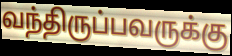
வந்திருப்பவருக்கு